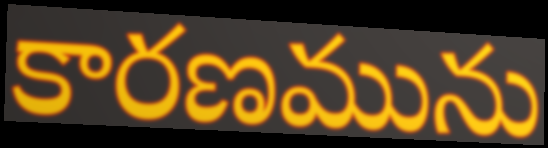
కారణమును